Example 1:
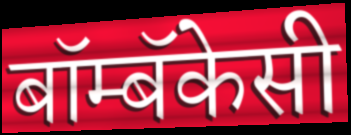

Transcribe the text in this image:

बॉम्बॅकेसी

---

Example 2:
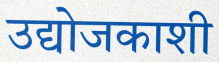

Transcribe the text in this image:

उद्योजकाशी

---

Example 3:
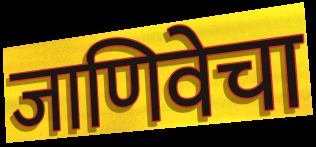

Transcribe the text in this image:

जाणिवेचा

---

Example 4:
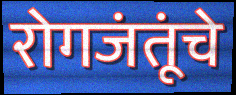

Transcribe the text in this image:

रोगजंतूंचे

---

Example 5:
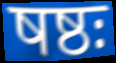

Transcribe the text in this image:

षष्ठः